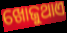
ଖୋଜୁଥାଏ